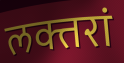
लक्तरां